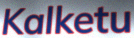
Kalketu